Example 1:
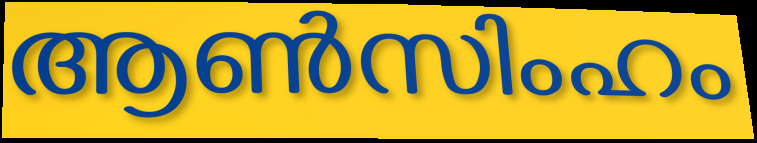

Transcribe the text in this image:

ആൺസിംഹം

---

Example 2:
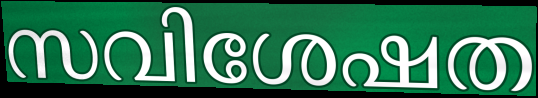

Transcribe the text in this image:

സവിശേഷത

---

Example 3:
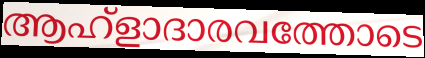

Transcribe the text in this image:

ആഹ്ളാദാരവത്തോടെ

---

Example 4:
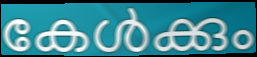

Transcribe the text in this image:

കേൾക്കും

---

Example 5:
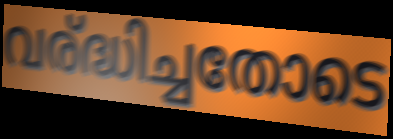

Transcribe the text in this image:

വര്ദ്ധിച്ചതോടെ